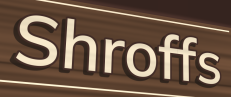
Shroffs